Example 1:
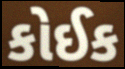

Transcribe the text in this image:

કોઈક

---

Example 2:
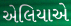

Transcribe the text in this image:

એલિયાએ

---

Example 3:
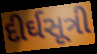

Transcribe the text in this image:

દીર્ઘસૂત્રી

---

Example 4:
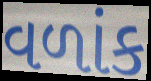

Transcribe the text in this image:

વળાંક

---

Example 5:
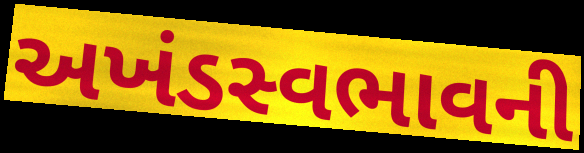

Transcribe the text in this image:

અખંડસ્વભાવની